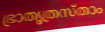
ഭ്രാതൃത്രസ്താം